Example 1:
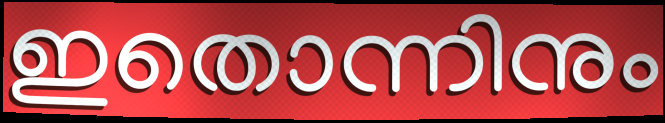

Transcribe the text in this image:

ഇതൊന്നിനും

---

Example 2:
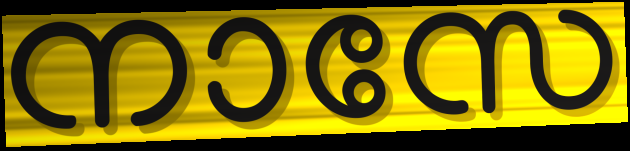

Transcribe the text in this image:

നാസേ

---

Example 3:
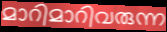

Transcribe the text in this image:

മാറിമാറിവരുന്ന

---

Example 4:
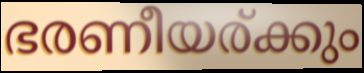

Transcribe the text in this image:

ഭരണീയര്ക്കും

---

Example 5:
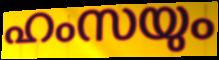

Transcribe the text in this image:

ഹംസയും